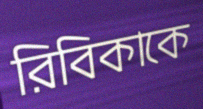
রিবিকাকে